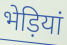
भेड़ियां